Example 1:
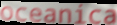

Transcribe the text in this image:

oceanica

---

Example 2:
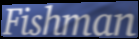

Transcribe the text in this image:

Fishman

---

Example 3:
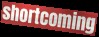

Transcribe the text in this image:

shortcoming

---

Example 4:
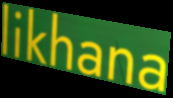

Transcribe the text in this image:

likhana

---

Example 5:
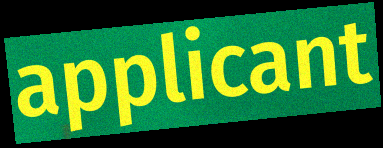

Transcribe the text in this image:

applicant